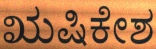
ಋಷಿಕೇಶ